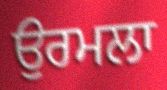
ਉਰਮਲਾ